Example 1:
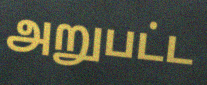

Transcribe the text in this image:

அறுபட்ட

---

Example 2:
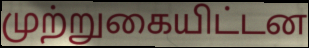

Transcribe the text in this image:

முற்றுகையிட்டன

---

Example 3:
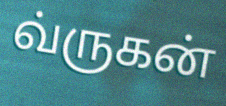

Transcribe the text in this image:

வ்ருகன்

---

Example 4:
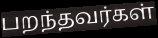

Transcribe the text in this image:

பறந்தவர்கள்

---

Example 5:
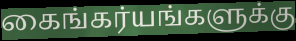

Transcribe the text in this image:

கைங்கர்யங்களுக்கு